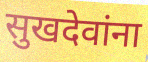
सुखदेवांना